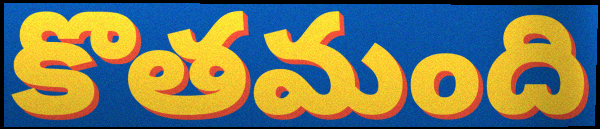
కొతమంది